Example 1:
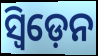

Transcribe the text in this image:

ସ୍ବିଡ଼େନ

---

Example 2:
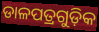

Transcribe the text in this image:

ଡାଳପତ୍ରଗୁଡ଼ିକ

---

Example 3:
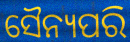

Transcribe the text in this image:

ସୈନ୍ୟପରି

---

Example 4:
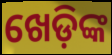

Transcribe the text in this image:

ଖେଡ଼ିଙ୍କ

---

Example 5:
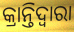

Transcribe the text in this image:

କ୍ରାନ୍ତିଦ୍ୱାରା